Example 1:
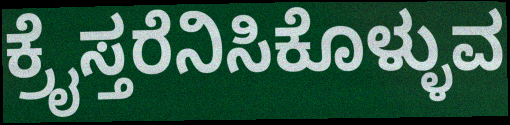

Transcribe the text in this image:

ಕ್ರೈಸ್ತರೆನಿಸಿಕೊಳ್ಳುವ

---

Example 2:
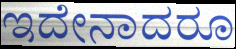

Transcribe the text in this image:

ಇದೇನಾದರೂ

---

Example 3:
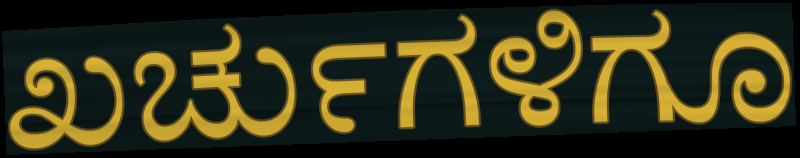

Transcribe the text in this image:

ಖರ್ಚುಗಳಿಗೂ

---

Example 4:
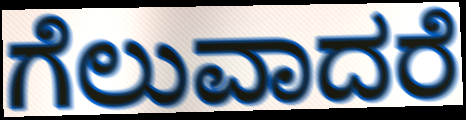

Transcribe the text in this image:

ಗೆಲುವಾದರೆ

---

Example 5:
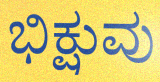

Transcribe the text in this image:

ಭಿಕ್ಷುವು